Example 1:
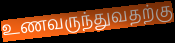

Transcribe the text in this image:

உணவருந்துவதற்கு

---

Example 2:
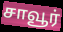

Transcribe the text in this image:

சாவூர்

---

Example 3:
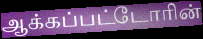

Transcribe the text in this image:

ஆக்கப்பட்டோரின்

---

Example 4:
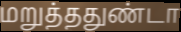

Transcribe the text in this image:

மறுத்ததுண்டா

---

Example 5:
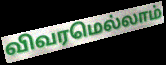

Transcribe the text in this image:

விவரமெல்லாம்